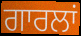
ਗਾਰਲਾਂ